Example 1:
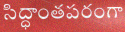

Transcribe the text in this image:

సిద్ధాంతపరంగా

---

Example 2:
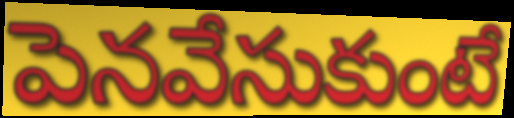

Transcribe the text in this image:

పెనవేసుకుంటే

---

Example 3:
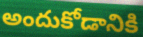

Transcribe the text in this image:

అందుకోడానికి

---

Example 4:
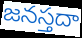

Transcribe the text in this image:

జనస్తదా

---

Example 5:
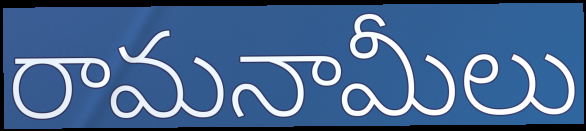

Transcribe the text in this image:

రామనామీలు